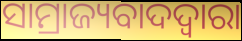
ସାମ୍ରାଜ୍ୟବାଦଦ୍ୱାରା